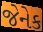
જેનેક